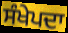
ਸੰਖੇਪਦਾ